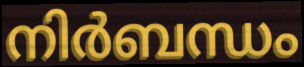
നിർബന്ധം